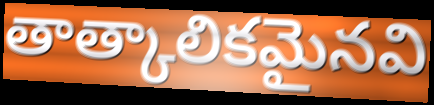
తాత్కాలికమైనవి